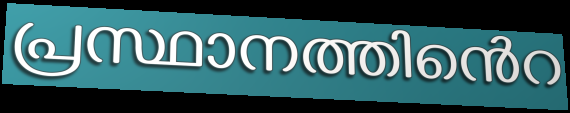
പ്രസ്ഥാനത്തിൻെറ